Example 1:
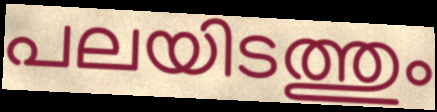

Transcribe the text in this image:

പലയിടത്തും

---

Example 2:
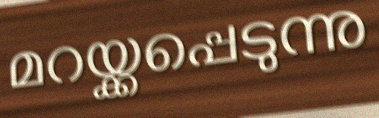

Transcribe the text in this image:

മറയ്ക്കപ്പെടുന്നു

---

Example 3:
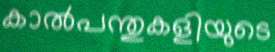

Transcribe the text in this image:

കാൽപന്തുകളിയുടെ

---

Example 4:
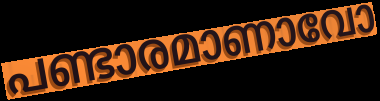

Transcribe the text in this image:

പണ്ടാരമാണാവോ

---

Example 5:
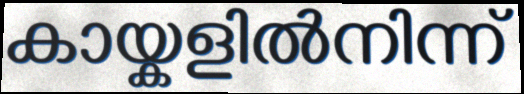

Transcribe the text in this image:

കായ്കളിൽനിന്ന്